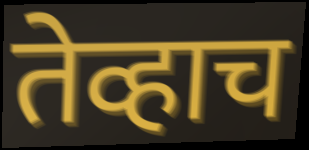
तेव्हाच